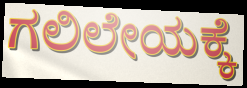
ಗಲಿಲೇಯಕ್ಕೆ